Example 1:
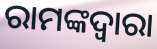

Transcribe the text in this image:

ରାମଙ୍କଦ୍ଵାରା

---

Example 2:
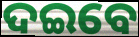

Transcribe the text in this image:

ଦଇବେ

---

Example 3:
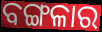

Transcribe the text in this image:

ବଙ୍ଗଳାର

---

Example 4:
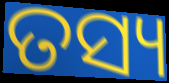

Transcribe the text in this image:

ତସ୍ୟ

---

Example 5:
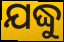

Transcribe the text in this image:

ଯଦ୍ଧୁ